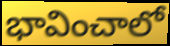
భావించాలో